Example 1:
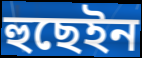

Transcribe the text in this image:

হুছেইন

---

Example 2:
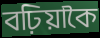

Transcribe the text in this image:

বঢ়িয়াকৈ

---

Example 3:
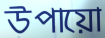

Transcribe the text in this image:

উপায়ো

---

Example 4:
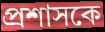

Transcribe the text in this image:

প্ৰশাসকে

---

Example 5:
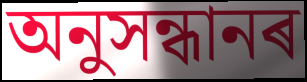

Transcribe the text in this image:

অনুসন্ধানৰ